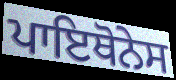
ਪਾਇਥੋਨੇਸ